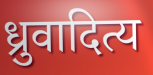
ध्रुवादित्य